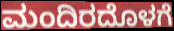
ಮಂದಿರದೊಳಗೆ